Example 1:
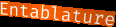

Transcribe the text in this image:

Entablature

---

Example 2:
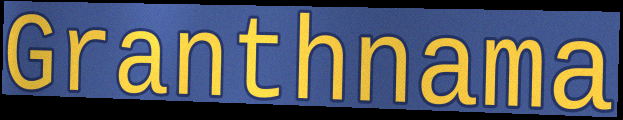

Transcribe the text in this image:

Granthnama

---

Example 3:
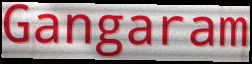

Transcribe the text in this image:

Gangaram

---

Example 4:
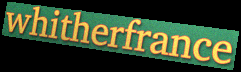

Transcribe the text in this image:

whitherfrance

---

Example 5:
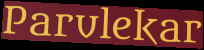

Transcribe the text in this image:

Parulekar